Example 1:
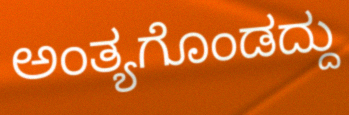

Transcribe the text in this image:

ಅಂತ್ಯಗೊಂಡದ್ದು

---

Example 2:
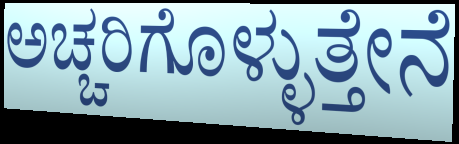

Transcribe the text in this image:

ಅಚ್ಚರಿಗೊಳ್ಳುತ್ತೇನೆ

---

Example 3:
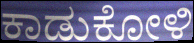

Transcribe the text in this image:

ಕಾಡುಕೋಳಿ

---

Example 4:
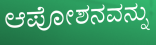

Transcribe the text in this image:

ಆಪೋಶನವನ್ನು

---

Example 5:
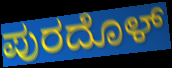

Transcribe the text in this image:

ಪುರದೊಳ್